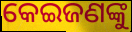
କେଇଜଣଙ୍କୁ